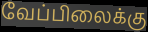
வேப்பிலைக்கு